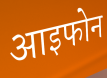
आइफोन